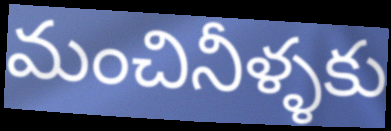
మంచినీళ్ళకు